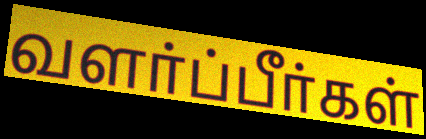
வளர்ப்பீர்கள்